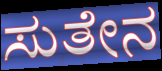
ಸುತೇನ